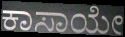
ಕಾಸಾಯೇ